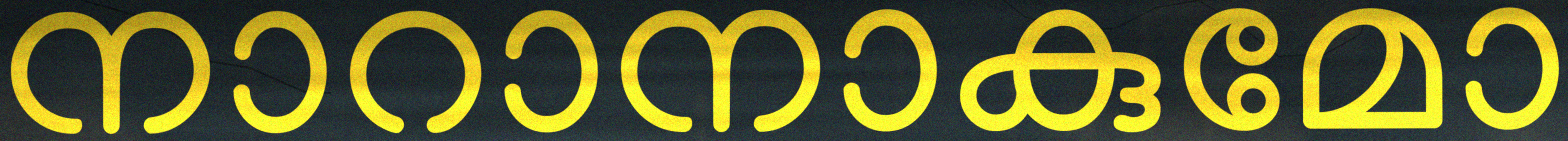
നാറാനാകുമോ